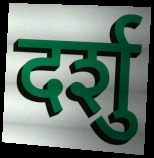
दर्शु